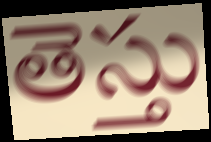
తెస్తు